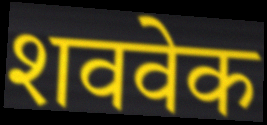
शववेक